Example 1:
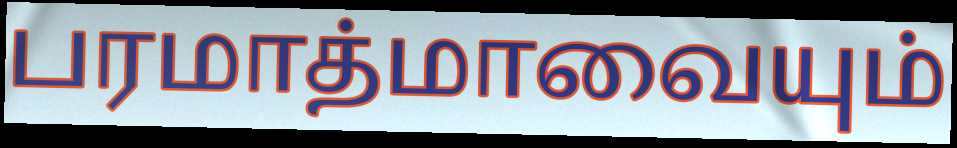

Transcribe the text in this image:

பரமாத்மாவையும்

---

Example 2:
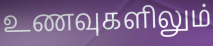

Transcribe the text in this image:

உணவுகளிலும்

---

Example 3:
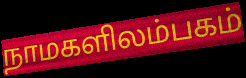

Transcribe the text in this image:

நாமகளிலம்பகம்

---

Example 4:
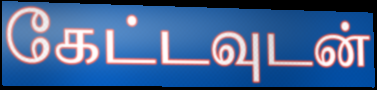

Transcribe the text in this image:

கேட்டவுடன்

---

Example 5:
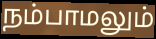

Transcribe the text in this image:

நம்பாமலும்